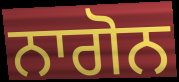
ਨਾਗੋਨ